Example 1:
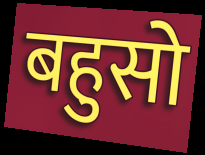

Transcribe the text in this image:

बहुसो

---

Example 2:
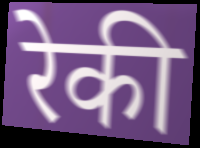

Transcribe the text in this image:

रेकी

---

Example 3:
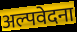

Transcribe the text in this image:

अल्पवेदना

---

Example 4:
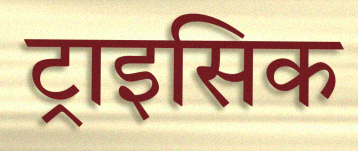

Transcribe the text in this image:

ट्राइसिक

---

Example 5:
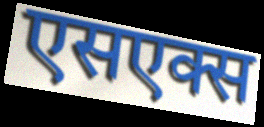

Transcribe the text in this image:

एसएक्स